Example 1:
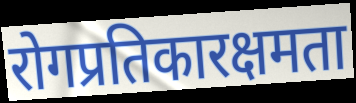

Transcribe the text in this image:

रोगप्रतिकारक्षमता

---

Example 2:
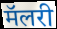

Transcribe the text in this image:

मॅलरी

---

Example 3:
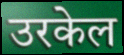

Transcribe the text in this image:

उरकेल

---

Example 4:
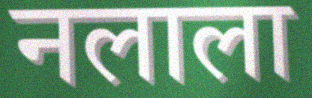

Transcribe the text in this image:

नलाला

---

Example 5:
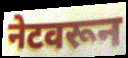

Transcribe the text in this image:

नेटवरून